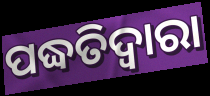
ପଦ୍ଧତିଦ୍ଵାରା